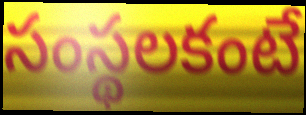
సంస్థలకంటే